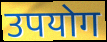
उपयोग